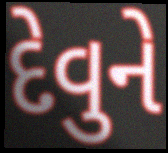
દેવુને